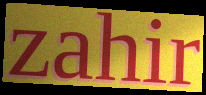
zahir